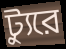
ট্যুরে